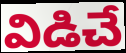
విడిచే